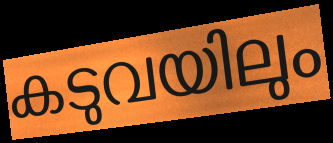
കടുവയിലും